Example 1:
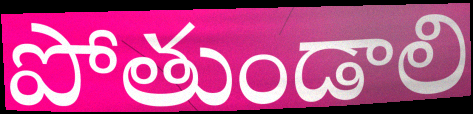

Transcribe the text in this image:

పోతుండాలి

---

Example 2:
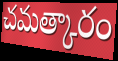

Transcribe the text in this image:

చమత్కారం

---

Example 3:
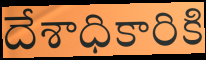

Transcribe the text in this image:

దేశాధికారికి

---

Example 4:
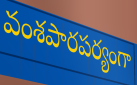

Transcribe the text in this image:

వంశపారపర్యంగా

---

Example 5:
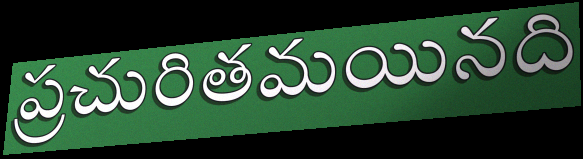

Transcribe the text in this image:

ప్రచురితమయినది